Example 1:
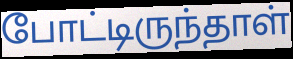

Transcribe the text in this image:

போட்டிருந்தாள்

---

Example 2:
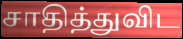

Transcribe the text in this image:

சாதித்துவிட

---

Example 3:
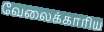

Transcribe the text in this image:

வேலைக்காரிய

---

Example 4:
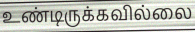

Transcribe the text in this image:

உண்டிருக்கவில்லை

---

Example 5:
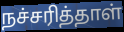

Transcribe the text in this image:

நச்சரித்தாள்